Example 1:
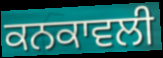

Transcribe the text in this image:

ਕਨਕਾਵਲੀ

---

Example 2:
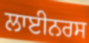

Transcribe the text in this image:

ਲਾਈਨਰਸ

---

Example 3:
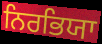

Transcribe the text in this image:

ਨਿਰਭਿਯਾ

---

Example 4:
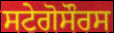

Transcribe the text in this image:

ਸਟੇਗੋਸੌਰਸ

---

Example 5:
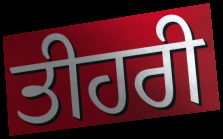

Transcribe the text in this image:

ਤੀਹਰੀ